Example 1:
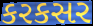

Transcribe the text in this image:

કરકસર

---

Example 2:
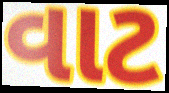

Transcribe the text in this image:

વાટ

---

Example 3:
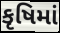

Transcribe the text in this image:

કૃષિમાં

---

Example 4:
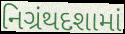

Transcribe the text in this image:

નિગ્રંથદશામાં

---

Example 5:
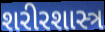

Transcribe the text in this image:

શરીરશાસ્ત્ર